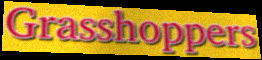
Grasshoppers